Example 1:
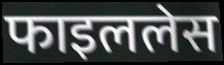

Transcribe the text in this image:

फाइललेस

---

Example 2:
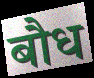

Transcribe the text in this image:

बौध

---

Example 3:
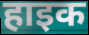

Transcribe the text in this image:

हाइक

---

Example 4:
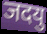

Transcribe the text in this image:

जदयु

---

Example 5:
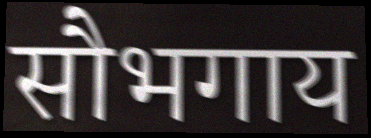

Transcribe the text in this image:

सौभगाय